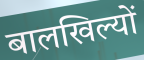
बालखिल्यों